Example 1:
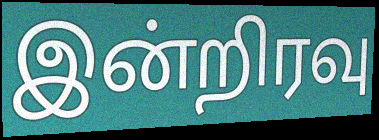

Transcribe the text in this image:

இன்றிரவு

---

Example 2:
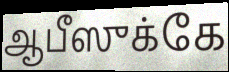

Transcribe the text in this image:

ஆபீஸுக்கே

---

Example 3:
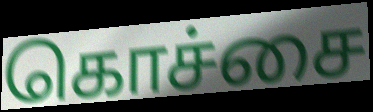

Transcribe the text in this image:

கொச்சை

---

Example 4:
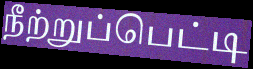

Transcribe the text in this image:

நீற்றுப்பெட்டி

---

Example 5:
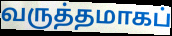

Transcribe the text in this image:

வருத்தமாகப்